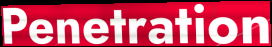
Penetration